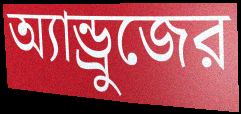
অ্যান্ড্রুজের